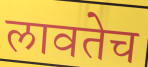
लावतेच